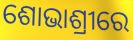
ଶୋଭାଶ୍ରୀରେ